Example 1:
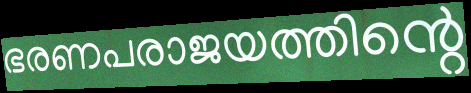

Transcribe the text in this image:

ഭരണപരാജയത്തിന്റെ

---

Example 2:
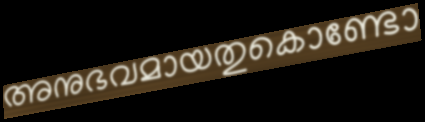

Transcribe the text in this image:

അനുഭവമായതുകൊണ്ടോ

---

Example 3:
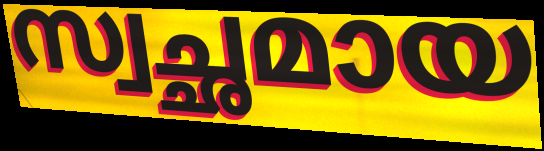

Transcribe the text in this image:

സ്വച്ഛമായ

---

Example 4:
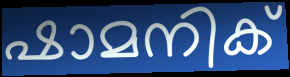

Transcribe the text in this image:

ഷാമനിക്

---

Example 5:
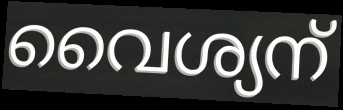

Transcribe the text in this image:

വൈശ്യന്